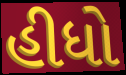
હીધો